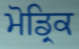
ਮੋਡ੍ਰਿਕ